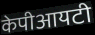
केपीआयटी